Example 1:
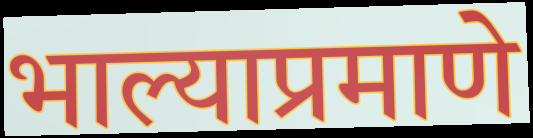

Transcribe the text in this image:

भाल्याप्रमाणे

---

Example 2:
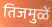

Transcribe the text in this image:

तिजमुळें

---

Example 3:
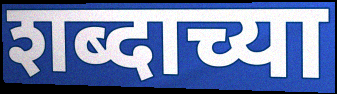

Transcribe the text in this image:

शब्दाच्या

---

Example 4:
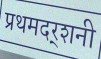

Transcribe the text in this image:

प्रथमदर्शनी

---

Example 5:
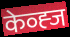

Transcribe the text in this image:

केव्ह्ज